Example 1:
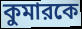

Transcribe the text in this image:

কুমারকে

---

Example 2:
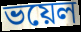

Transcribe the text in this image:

ভয়েল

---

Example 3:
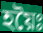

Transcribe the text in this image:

হয়ৈঃ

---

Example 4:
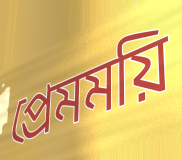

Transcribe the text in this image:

প্রেমময়ি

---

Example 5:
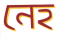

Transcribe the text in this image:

নেহ